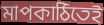
মাপকাঠিতেই